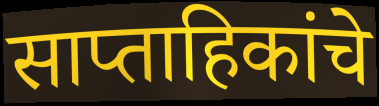
साप्ताहिकांचे